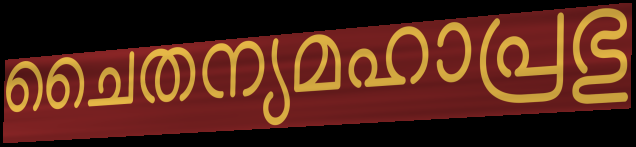
ചൈതന്യമഹാപ്രഭു